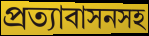
প্রত্যাবাসনসহ